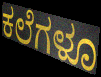
ಕಲೆಗಳೂ